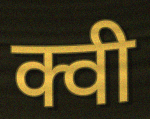
क्वी